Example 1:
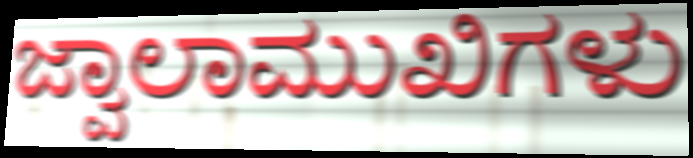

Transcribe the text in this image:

ಜ್ವಾಲಾಮುಖಿಗಳು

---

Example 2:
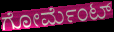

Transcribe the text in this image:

ಗೋರ್ಮೆಂಟ್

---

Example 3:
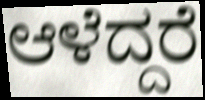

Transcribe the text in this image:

ಆಳೆದ್ದರೆ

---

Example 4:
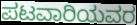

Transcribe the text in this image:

ಪಟವಾರಿಯವರ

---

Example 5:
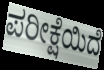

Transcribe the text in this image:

ಪರೀಕ್ಷೆಯಿದೆ